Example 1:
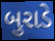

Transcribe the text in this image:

બુરાડે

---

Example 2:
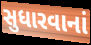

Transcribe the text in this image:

સુધારવાનાં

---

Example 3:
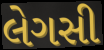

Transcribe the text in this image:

લેગસી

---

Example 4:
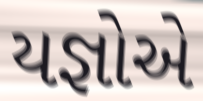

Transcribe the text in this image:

યજ્ઞોએ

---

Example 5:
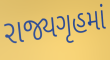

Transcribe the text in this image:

રાજ્યગૃહમાં